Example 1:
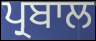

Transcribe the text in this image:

ਪ੍ਰਬਾਲ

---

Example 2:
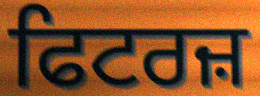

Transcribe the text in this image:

ਫਿਟਰਜ਼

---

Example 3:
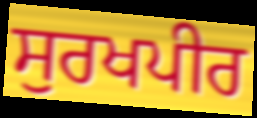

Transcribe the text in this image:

ਸੁਰਖਪੀਰ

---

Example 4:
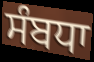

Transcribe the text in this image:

ਸੰਬਧਾ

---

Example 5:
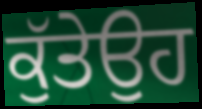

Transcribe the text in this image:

ਕੁੱਤੇਉਹ